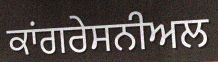
ਕਾਂਗਰੇਸਨੀਅਲ